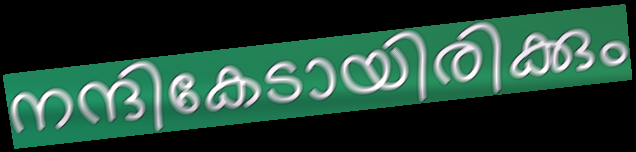
നന്ദികേടായിരിക്കും